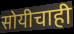
सोयीचाही